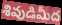
శివుడిమీద